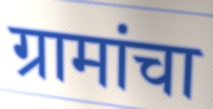
ग्रामांचा